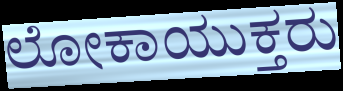
ಲೋಕಾಯುಕ್ತರು